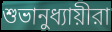
শুভানুধ্যায়ীরা